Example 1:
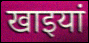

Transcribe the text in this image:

खाइयां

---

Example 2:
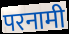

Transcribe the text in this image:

परनामी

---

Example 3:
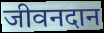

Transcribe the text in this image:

जीवनदान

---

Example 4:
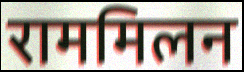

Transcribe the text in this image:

राममिलन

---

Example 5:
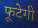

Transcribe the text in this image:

फूटेगी